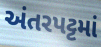
અંતરપટ્ટમાં